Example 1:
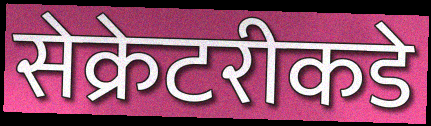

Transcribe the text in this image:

सेक्रेटरीकडे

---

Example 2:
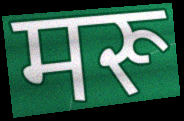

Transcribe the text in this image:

मरू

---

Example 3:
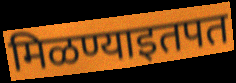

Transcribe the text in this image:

मिळण्याइतपत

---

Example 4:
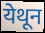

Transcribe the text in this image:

येथून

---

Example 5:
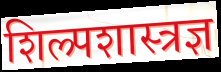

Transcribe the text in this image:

शिल्पशास्त्रज्ञ